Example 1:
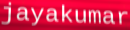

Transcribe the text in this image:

jayakumar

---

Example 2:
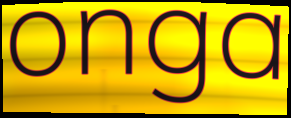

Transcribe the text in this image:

onga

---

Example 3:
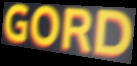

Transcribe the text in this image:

GORD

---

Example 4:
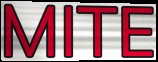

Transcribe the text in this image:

MITE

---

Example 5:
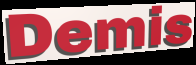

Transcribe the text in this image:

Demis